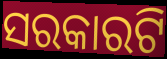
ସରକାରଟି